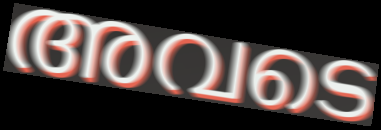
അവടെ